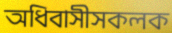
অধিবাসীসকলক